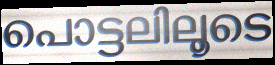
പൊട്ടലിലൂടെ